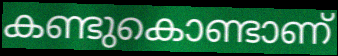
കണ്ടുകൊണ്ടാണ്